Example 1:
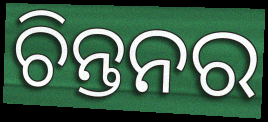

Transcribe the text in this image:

ଚିନ୍ତନର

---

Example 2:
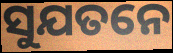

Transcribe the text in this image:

ସୁଯତନେ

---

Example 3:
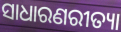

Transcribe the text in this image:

ସାଧାରଣରୀତ୍ୟା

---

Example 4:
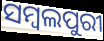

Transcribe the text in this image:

ସମ୍ବଲପୁରୀ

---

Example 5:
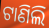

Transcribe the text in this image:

ଟାଣିଲି